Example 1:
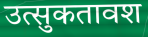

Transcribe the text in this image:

उत्सुकतावश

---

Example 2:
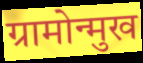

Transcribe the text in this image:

ग्रामोन्मुख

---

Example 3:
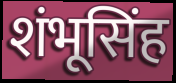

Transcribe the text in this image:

शंभूसिंह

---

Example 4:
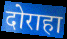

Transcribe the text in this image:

दोराहा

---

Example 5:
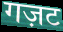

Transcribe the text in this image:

गज़ट